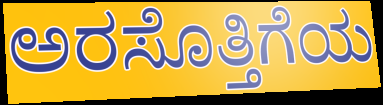
ಅರಸೊತ್ತಿಗೆಯ